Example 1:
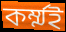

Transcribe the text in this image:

কর্ম্মই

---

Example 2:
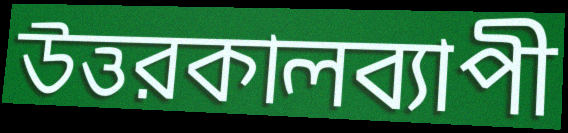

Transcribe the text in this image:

উত্তরকালব্যাপী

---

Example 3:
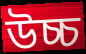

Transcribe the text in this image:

উচ্চ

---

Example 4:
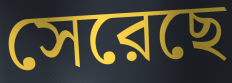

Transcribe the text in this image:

সেরেছে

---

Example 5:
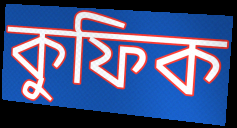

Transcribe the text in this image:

কুফিক